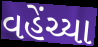
વહેંચ્યા